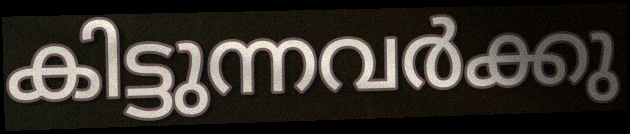
കിട്ടുന്നവർക്കു